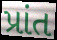
પ્રાંત